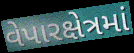
વેપારક્ષેત્રમાં